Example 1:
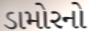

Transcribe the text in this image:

ડામોરનો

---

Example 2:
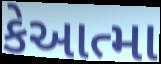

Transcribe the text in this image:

કેઆત્મા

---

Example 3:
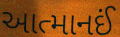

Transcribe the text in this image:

આત્માનઈં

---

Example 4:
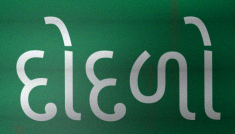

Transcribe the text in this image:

દોદળો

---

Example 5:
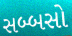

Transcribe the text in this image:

સબ્બસો